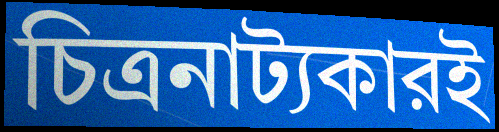
চিত্রনাট্যকারই